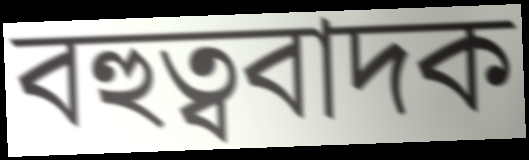
বহুত্ববাদক